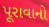
પૂરાવાનો